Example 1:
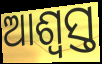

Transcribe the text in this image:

ଆଶ୍ବସ୍ତ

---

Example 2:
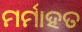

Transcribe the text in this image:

ମର୍ମାହତ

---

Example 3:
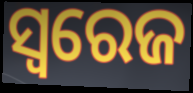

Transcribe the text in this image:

ସ୍ବରେଜ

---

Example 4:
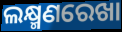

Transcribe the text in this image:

ଲକ୍ଷ୍ମଣରେଖା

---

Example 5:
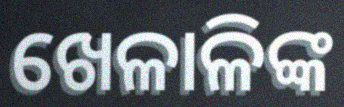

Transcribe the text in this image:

ଖେଳାଳିଙ୍କ